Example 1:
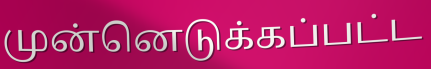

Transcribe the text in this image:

முன்னெடுக்கப்பட்ட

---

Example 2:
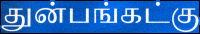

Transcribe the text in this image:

துன்பங்கட்கு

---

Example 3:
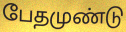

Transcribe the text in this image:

பேதமுண்டு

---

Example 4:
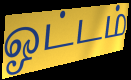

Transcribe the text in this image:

ஓட்டம்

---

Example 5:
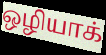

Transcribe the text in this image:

ஒழியாக்